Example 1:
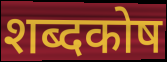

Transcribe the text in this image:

शब्दकोष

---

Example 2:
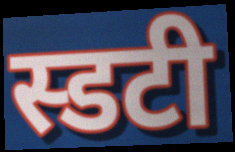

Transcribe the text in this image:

स्डटी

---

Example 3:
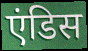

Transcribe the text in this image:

एंडिस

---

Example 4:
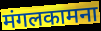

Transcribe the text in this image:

मंगलकामना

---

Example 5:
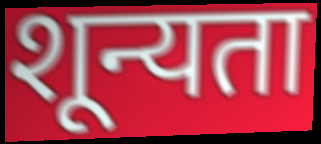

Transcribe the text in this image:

शून्‍यता